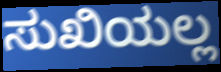
ಸುಖಿಯಲ್ಲ